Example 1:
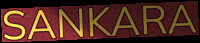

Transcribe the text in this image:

SANKARA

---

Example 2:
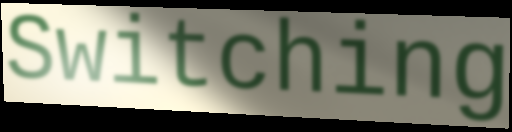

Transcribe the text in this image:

Switching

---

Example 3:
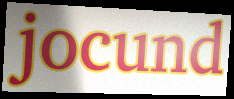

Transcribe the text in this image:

jocund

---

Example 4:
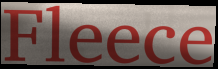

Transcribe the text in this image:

Fleece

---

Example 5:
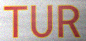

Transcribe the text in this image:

TUR